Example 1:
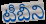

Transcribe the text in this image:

టీబీని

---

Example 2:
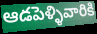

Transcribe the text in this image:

ఆడపెళ్ళివారికి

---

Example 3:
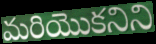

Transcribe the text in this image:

మరియొకనిని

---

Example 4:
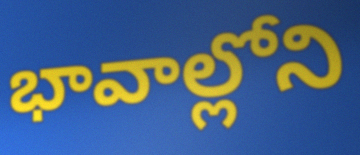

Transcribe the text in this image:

భావాల్లోని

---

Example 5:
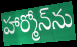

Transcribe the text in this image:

హార్మోన్‌ను